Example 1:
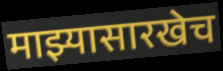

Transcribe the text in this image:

माझ्यासारखेच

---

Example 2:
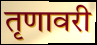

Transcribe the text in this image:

तृणावरी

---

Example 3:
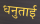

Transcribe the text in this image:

धनुताई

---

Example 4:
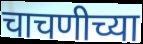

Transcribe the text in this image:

चाचणीच्या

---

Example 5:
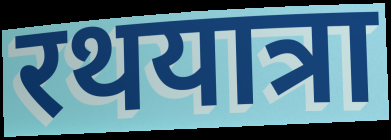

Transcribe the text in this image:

रथयात्रा